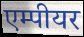
एम्पीयर